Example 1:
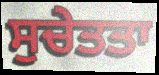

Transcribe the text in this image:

ਸੁਚੇਤਤਾ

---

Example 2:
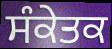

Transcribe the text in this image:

ਸੰਕੇਤਕ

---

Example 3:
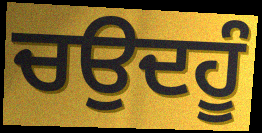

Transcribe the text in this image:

ਚਉਦਹੂੰ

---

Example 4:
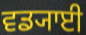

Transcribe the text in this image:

ਵਡ੍ਯਾਈ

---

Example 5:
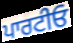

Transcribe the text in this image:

ਪਾਰਟੀਓ